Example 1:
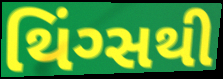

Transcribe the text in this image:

થિંગ્સથી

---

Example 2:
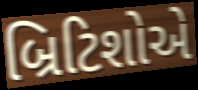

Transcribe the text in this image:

બ્રિટિશોએ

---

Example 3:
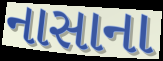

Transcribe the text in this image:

નાસાના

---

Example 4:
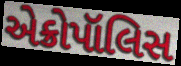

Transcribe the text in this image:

એક્રોપૉલિસ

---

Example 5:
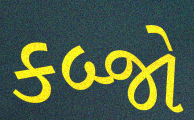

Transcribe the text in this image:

કબ્જો